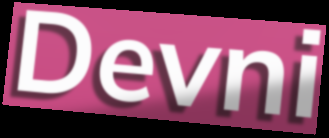
Devni